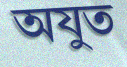
অযুত